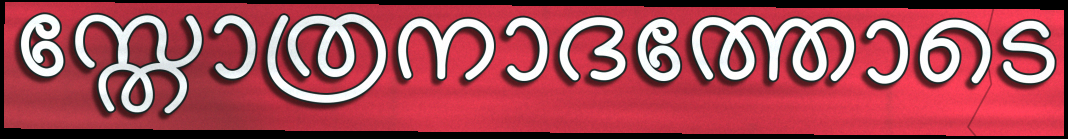
സ്തോത്രനാദത്തോടെ